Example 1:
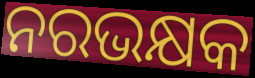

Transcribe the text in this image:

ନରଭକ୍ଷକ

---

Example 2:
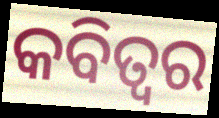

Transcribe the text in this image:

କବିତ୍ଵର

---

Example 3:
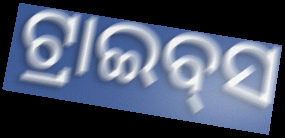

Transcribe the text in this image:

ଟ୍ରାଇବ୍‌ସ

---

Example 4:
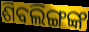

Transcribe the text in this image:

ଶିବଲିଙ୍ଗଙ୍କ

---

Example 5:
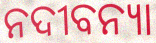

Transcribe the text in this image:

ନଦୀବନ୍ୟା